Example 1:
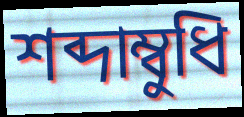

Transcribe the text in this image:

শব্দাম্বুধি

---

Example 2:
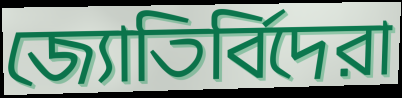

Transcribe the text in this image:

জ্যোতির্বিদেরা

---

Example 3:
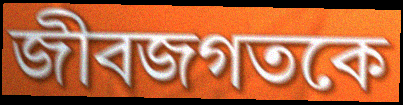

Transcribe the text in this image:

জীবজগতকে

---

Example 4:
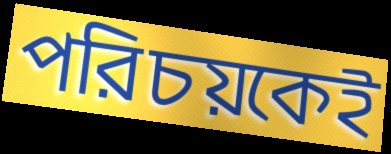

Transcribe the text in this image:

পরিচয়কেই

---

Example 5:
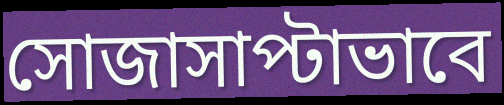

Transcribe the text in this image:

সোজাসাপ্টাভাবে